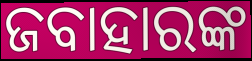
ଜବାହାରଙ୍କ